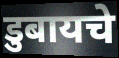
डुबायचे